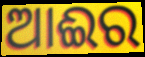
ଆଈର